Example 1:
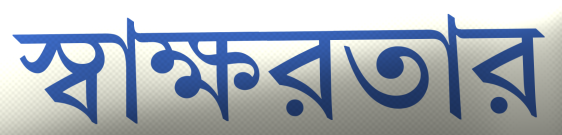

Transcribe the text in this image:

স্বাক্ষরতার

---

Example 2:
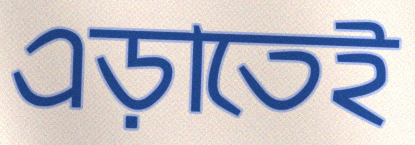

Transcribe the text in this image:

এড়াতেই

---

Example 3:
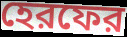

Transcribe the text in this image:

হেরফের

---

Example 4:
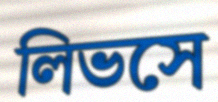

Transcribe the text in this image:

লিভসে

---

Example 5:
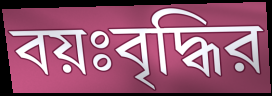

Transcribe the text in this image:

বয়ঃবৃদ্ধির